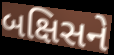
બક્ષિસને